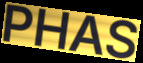
PHAS